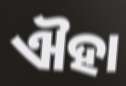
ଐହା